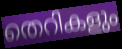
തെറികളും